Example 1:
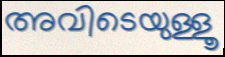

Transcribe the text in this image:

അവിടെയുള്ളൂ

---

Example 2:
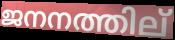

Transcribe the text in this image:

ജനനത്തില്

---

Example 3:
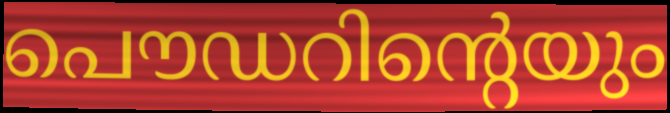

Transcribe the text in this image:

പൌഡറിന്റെയും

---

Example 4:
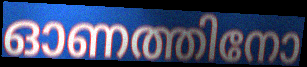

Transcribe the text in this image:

ഓണത്തിനോ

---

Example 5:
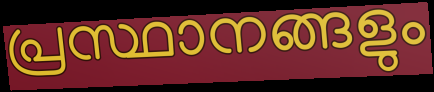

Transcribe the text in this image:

പ്രസ്ഥാനങ്ങളും